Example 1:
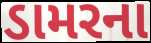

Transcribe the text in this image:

ડામરના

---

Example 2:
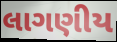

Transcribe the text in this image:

લાગણીય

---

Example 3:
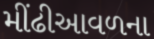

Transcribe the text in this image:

મીંઢીઆવળના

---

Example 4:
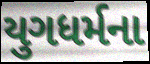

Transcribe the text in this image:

યુગધર્મના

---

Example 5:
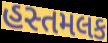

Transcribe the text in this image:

હસ્તમલક